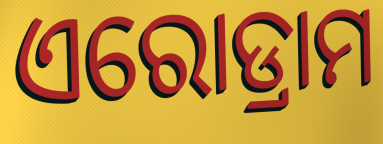
ଏରୋଡ୍ରାମ